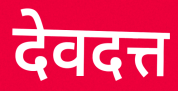
देवदत्त